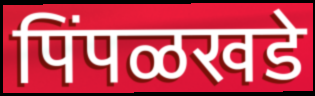
पिंपळखडे